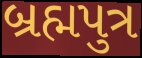
બ્રહ્મપુત્ર